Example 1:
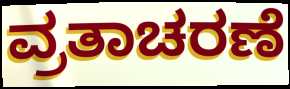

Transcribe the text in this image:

ವ್ರತಾಚರಣೆ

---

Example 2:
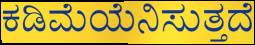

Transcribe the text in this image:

ಕಡಿಮೆಯೆನಿಸುತ್ತದೆ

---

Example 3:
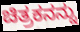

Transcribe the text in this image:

ಚಿತ್ರಕನನ್ನು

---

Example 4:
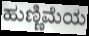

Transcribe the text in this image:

ಹುಣ್ಣಿಮೆಯ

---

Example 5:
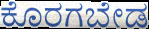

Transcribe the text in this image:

ಕೊರಗಬೇಡ